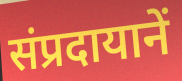
संप्रदायानें